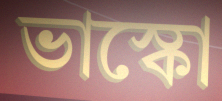
ভাস্কো